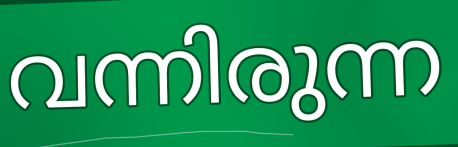
വന്നിരുന്ന